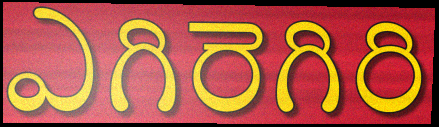
ఎగిరెగిరి